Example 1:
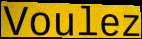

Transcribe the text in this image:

Voulez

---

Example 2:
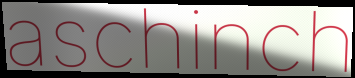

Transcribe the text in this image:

aschinch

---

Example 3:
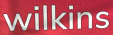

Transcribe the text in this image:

wilkins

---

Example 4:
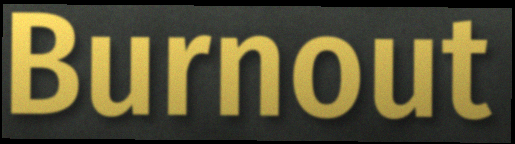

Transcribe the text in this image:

Burnout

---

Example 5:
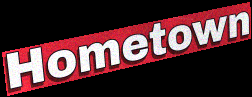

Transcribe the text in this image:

Hometown